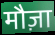
मौज़ा